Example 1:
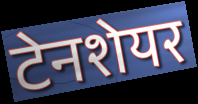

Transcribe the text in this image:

टेनशेयर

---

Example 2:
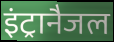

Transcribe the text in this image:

इंट्रानैजल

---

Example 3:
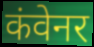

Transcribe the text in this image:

कंवेनर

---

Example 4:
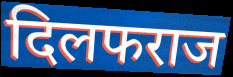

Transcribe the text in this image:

दिलफराज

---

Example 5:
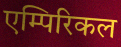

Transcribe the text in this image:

एम्पिरिकल